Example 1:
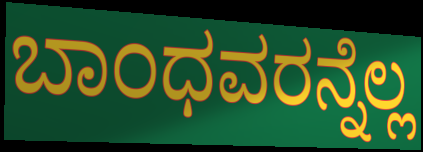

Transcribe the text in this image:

ಬಾಂಧವರನ್ನೆಲ್ಲ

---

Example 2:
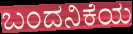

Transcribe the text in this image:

ಬಂದನಿಕೆಯ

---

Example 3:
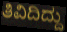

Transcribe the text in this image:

ತಿವಿದಿದ್ದು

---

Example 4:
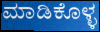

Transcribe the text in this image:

ಮಾಡಿಕೊಳ್ಳ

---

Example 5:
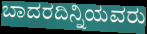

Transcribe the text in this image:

ಬಾದರದಿನ್ನಿಯವರು